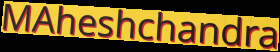
MAheshchandra